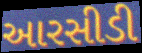
આરસીડી